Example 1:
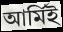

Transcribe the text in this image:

আর্মিই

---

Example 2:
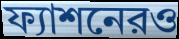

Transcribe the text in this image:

ফ্যাশনেরও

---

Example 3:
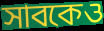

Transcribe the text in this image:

সাবকেও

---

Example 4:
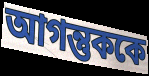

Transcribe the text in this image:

আগন্তুককে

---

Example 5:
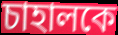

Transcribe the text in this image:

চাহালকে